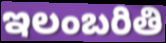
ఇలంబరితి